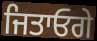
ਜਿਤਾਓਗੇ